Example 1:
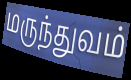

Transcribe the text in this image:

மருந்துவம்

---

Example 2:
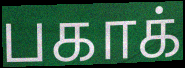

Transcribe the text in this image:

பகாக்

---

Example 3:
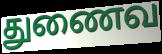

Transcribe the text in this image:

துணைவ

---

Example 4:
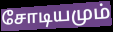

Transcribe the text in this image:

சோடியமும்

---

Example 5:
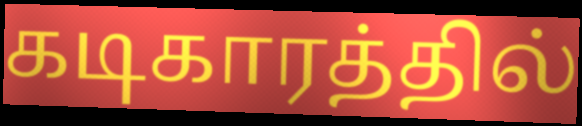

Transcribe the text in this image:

கடிகாரத்தில்